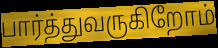
பார்த்துவருகிறோம்